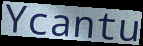
Ycantu